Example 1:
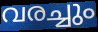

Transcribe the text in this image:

വരച്ചും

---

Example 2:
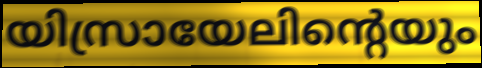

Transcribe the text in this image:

യിസ്രായേലിന്റെയും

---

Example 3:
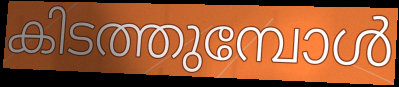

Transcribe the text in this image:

കിടത്തുമ്പോൾ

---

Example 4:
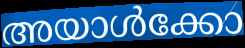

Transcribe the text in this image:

അയാൾക്കോ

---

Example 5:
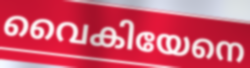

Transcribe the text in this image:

വൈകിയേനെ